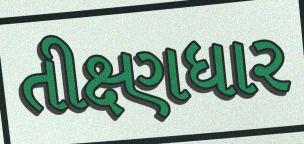
તીક્ષ્ણધાર